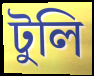
টুলি